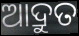
ଆଦ୍ରୁତ